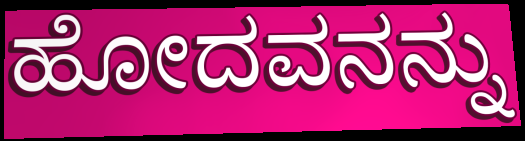
ಹೋದವನನ್ನು